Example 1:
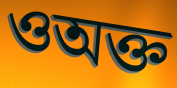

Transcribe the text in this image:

ওঅক্ত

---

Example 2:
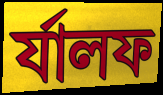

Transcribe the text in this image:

র্যালফ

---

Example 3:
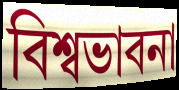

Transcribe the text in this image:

বিশ্বভাবনা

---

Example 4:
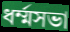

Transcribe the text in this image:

ধর্ম্মসভা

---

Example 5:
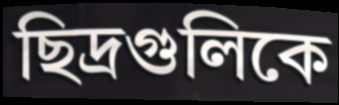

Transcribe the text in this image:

ছিদ্রগুলিকে